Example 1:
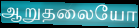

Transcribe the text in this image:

ஆறுதலையோ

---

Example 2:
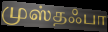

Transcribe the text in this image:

முஸ்தஃபா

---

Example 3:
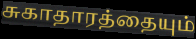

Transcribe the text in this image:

சுகாதாரத்தையும்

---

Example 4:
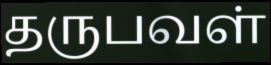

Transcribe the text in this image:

தருபவள்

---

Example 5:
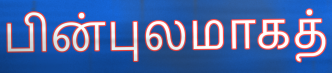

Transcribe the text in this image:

பின்புலமாகத்